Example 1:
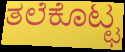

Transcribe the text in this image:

ತಲೆಕೊಟ್ಟ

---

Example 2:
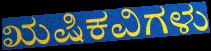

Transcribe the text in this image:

ಋಷಿಕವಿಗಳು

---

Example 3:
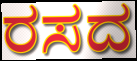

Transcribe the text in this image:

ರಸದ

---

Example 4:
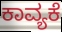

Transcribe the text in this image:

ಕಾವ್ಯಕೆ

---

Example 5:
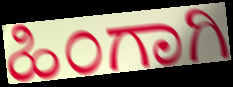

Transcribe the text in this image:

ಹಿಂಗಾಗಿ